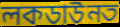
লকডাউনত